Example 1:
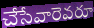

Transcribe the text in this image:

చేసేవారెవరూ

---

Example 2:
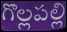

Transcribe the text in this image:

గొల్లపల్లి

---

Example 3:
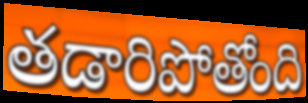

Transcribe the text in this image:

తడారిపోతోంది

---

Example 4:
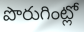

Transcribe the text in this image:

పొరుగింట్లో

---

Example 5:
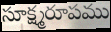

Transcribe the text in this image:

సూక్ష్మరూపము